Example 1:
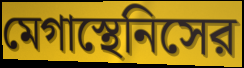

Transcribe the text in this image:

মেগাস্থেনিসের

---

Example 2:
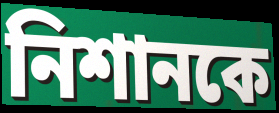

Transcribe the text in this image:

নিশানকে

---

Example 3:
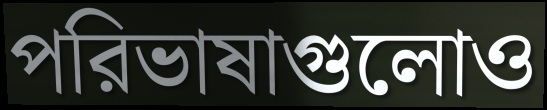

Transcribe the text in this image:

পরিভাষাগুলোও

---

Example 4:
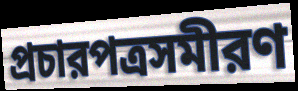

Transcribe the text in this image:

প্রচারপত্রসমীরণ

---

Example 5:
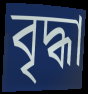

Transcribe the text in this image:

বৃদ্ধা